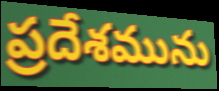
ప్రదేశమును